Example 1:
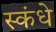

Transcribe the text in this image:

स्कंधे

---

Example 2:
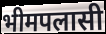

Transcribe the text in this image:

भीमपलासी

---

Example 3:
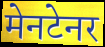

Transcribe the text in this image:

मेनटेनर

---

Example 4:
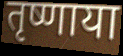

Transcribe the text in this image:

तृष्णाया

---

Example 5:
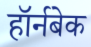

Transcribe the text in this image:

हॉर्नबेक